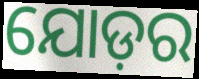
ଯୋଡ଼ର